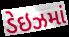
ડેઇઝમાં